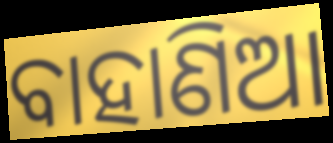
ବାହାଣିଆ